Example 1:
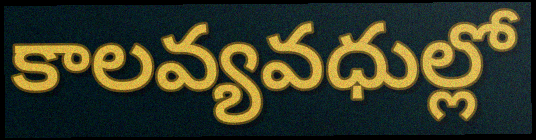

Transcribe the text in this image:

కాలవ్యవధుల్లో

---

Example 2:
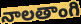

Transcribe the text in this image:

నాలతాంగి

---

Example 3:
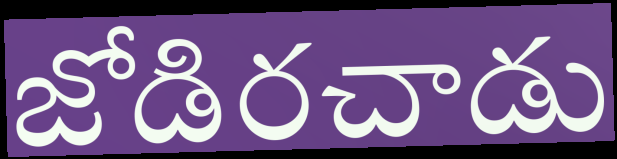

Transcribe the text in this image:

జోడిరచాడు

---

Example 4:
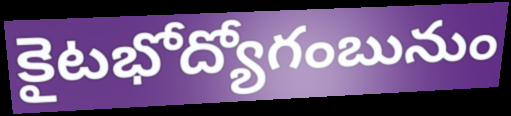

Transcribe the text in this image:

కైటభోద్యోగంబునుం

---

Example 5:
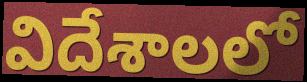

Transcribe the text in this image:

విదేశాలలో